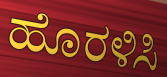
ಹೊರಳಿಸಿ